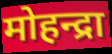
मोहन्द्रा